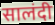
सालंदी